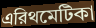
এরিথমেটিকা